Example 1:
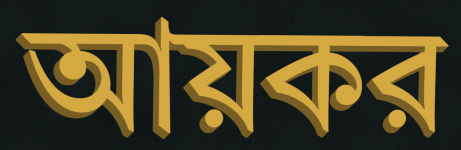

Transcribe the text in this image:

আয়কর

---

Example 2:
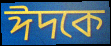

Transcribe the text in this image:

ঈদকে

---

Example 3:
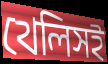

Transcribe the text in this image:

থেলিসই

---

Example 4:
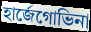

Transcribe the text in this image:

হার্জেগোভিনা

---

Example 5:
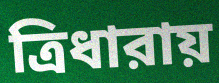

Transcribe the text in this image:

ত্রিধারায়